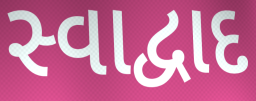
સ્વાદ્વાદ